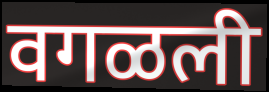
वगळली